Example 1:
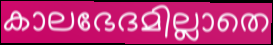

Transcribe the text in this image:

കാലഭേദമില്ലാതെ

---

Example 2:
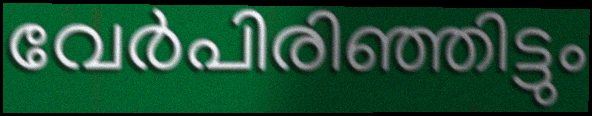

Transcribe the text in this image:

വേർപിരിഞ്ഞിട്ടും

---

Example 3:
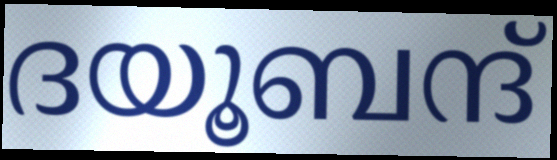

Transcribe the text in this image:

ദയൂബന്ദ്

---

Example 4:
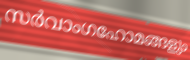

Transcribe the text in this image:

സർവാംഗഹോമങ്ങളും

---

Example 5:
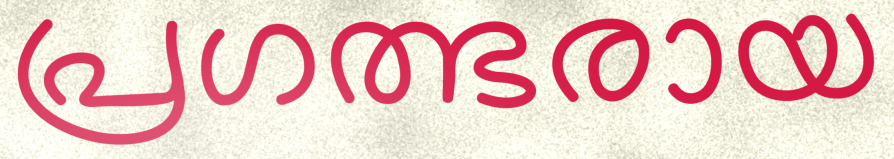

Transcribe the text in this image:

പ്രഗത്ഭരായ